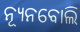
ନ୍ୟୂନବୋଲି